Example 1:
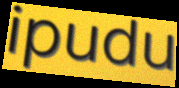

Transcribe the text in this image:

ipudu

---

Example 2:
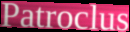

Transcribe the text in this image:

Patroclus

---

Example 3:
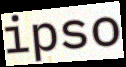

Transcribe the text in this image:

ipso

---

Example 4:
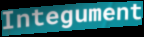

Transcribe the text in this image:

Integument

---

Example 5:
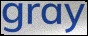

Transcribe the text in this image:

gray